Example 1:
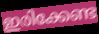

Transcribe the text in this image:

ഇരിക്കേണ്ട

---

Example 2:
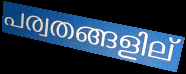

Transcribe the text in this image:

പര്വതങ്ങളില്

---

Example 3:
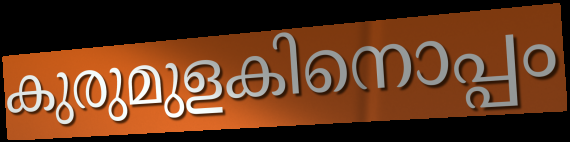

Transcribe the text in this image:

കുരുമുളകിനൊപ്പം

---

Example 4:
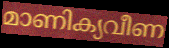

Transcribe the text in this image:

മാണിക്യവീണ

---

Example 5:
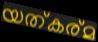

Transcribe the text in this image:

യത്കര്മ